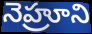
నెహ్రూని